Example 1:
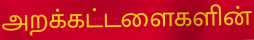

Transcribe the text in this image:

அறக்கட்டளைகளின்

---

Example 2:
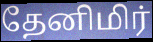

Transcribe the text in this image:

தேனிமிர்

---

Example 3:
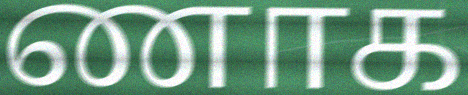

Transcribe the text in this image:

ணாக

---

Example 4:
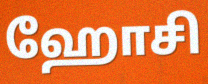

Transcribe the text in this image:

ஹோசி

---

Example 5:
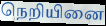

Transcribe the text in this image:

நெறியினை